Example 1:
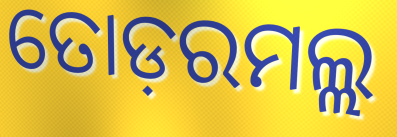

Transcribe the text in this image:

ତୋଡ଼ରମଲ୍ଲ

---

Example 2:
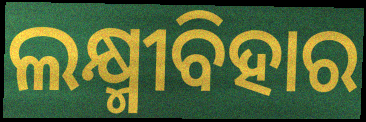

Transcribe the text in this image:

ଲକ୍ଷ୍ମୀବିହାର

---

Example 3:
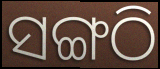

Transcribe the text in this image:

ସଙ୍ଗଠି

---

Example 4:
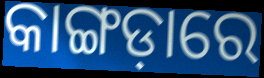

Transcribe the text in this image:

କାଙ୍ଗଡ଼ାରେ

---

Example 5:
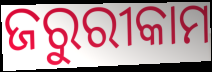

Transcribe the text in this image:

ଜରୁରୀକାମ